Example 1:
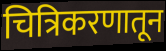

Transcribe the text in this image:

चित्रिकरणातून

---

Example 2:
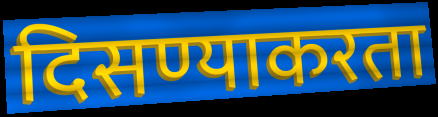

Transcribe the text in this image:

दिसण्याकरता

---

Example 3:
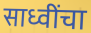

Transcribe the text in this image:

साध्वींचा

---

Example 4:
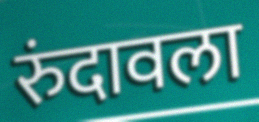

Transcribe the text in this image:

रुंदावला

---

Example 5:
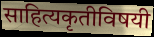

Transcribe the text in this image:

साहित्यकृतीविषयी